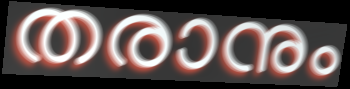
തരാനും